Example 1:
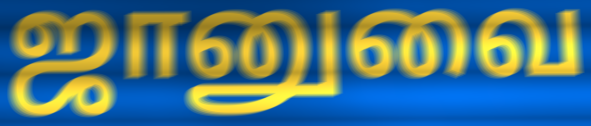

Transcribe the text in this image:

ஜானுவை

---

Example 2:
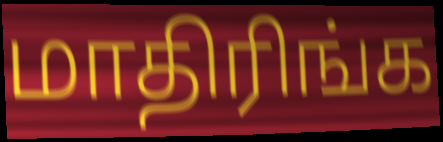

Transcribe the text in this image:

மாதிரிங்க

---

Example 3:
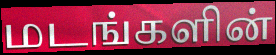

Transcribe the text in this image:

மடங்களின்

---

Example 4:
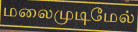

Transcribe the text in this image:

மலைமுடிமேல்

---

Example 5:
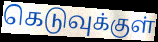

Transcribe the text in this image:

கெடுவுக்குள்